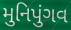
મુનિપુંગવ